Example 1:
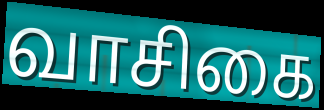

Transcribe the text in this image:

வாசிகை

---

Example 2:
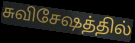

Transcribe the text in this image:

சுவிசேஷத்தில்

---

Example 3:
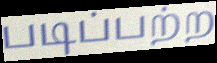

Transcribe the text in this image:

படிப்பற்ற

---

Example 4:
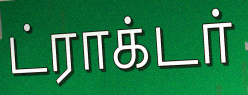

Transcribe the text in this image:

ட்ராக்டர்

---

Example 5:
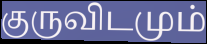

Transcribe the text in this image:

குருவிடமும்